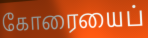
கோரையைப்